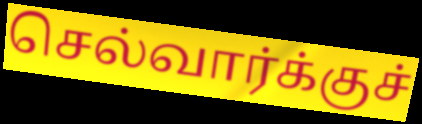
செல்வார்க்குச்